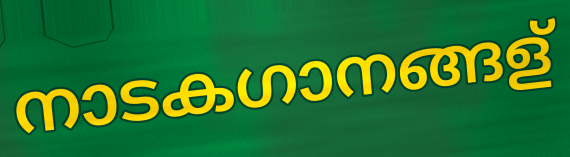
നാടകഗാനങ്ങള്